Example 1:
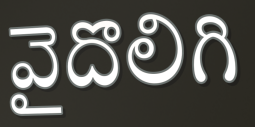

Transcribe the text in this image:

వైదొలిగి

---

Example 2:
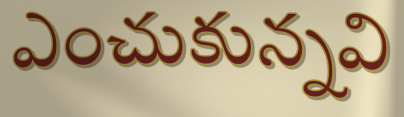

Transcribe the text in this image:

ఎంచుకున్నవి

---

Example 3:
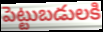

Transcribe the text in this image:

పెట్టుబడులకి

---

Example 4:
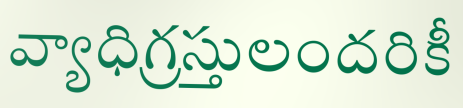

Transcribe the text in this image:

వ్యాధిగ్రస్తులందరికీ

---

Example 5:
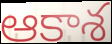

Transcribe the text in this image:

ఆకాశ